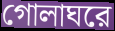
গোলাঘরে